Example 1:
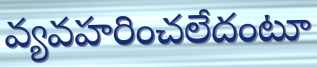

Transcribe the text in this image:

వ్యవహరించలేదంటూ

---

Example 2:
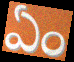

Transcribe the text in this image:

ఏం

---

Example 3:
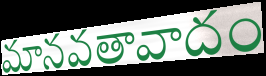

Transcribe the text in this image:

మానవతావాదం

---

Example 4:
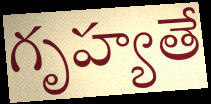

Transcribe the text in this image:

గృహ్యతే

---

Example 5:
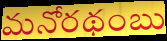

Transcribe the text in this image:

మనోరథంబు